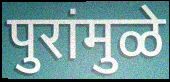
पुरांमुळे